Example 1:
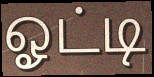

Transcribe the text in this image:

ஓட்டி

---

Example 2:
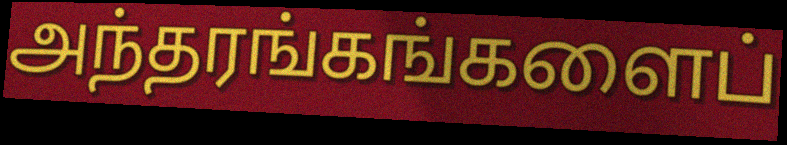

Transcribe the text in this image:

அந்தரங்கங்களைப்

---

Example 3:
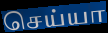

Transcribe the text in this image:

செய்யா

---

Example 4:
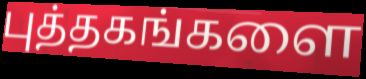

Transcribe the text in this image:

புத்தகங்களை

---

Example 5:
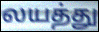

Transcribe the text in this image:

லயத்து